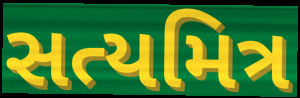
સત્યમિત્ર